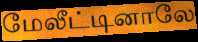
மேலீட்டினாலே